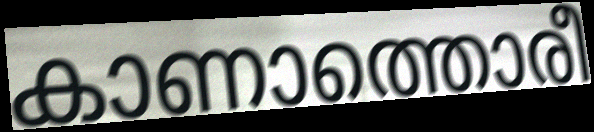
കാണാത്തൊരീ